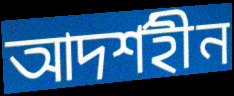
আদর্শহীন